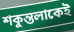
শকুন্তলাকেই